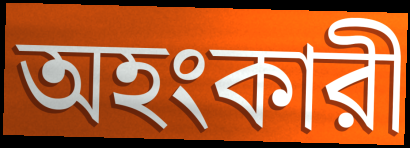
অহংকারী